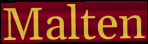
Malten